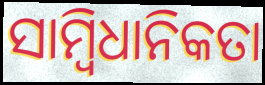
ସାମ୍ବିଧାନିକତା